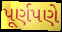
પૂર્ણપણે